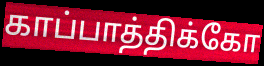
காப்பாத்திக்கோ